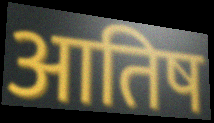
आतिष